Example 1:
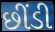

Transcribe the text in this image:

છીંડી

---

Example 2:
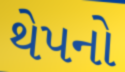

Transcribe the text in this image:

થેપનો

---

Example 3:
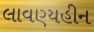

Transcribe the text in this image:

લાવણ્યહીન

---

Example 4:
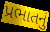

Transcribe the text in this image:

પ્રભાતનું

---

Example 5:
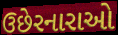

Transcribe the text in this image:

ઉછેરનારાઓ